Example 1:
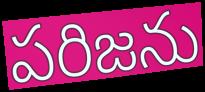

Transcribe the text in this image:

పరిజను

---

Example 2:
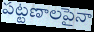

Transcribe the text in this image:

పట్టణాలపైనా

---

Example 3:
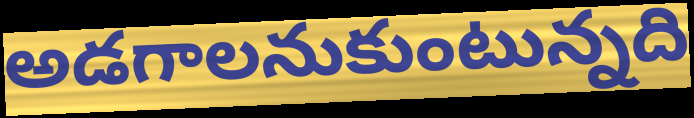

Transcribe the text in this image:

అడగాలనుకుంటున్నది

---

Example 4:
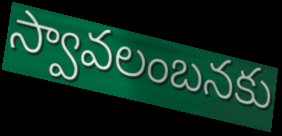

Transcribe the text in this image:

స్వావలంబనకు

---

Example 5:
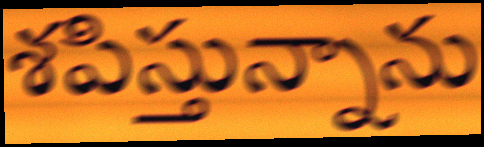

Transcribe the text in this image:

శపిస్తున్నాను